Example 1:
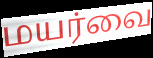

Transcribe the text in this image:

மயர்வை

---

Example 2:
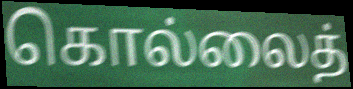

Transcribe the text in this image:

கொல்லைத்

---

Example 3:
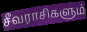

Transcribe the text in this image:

சீவராசிகளும்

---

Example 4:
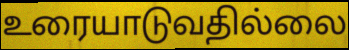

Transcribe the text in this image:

உரையாடுவதில்லை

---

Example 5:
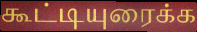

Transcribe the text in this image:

கூட்டியுரைக்க